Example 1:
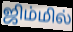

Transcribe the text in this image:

ஜிம்மில்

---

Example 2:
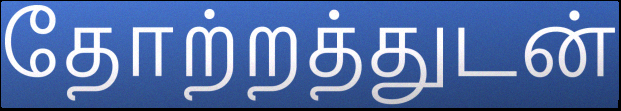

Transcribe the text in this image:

தோற்றத்துடன்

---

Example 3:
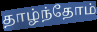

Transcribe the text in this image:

தாழ்ந்தோம்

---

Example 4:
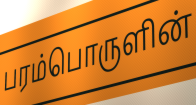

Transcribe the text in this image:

பரம்பொருளின்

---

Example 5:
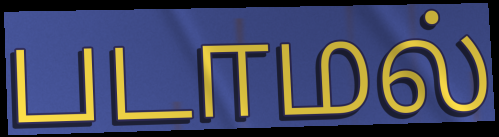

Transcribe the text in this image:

படாமல்